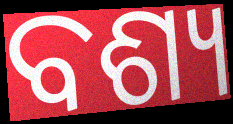
ବଶ୍ୟ